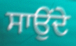
ਸਾਉਂਦੇ